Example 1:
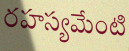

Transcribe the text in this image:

రహస్యమేంటి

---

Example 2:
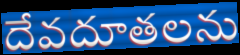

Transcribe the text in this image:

దేవదూతలను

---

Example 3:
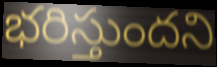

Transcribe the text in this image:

భరిస్తుందని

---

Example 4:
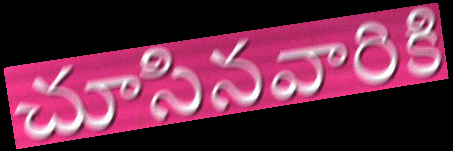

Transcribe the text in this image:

చూసినవారికి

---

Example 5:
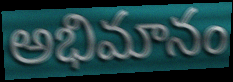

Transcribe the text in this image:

అభిమానం